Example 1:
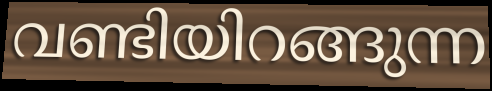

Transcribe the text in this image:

വണ്ടിയിറങ്ങുന്ന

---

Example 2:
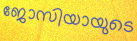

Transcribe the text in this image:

ജോസിയായുടെ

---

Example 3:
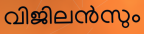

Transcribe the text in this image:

വിജിലൻസും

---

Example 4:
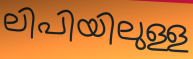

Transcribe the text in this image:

ലിപിയിലുള്ള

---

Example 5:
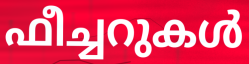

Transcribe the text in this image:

ഫീച്ചറുകൾ